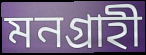
মনগ্রাহী